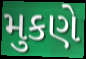
મુકણે